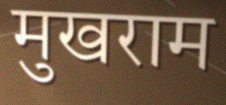
मुखराम